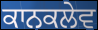
ਕਾਨਕਲੇਵ